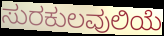
ಸುರಕುಲವುಲಿಯೆ